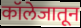
कॉलेजातून